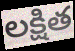
లక్షిత